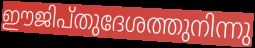
ഈജിപ്തുദേശത്തുനിന്നു